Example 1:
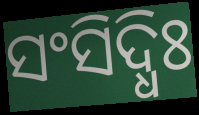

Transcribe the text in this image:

ସଂସିଦ୍ଧିଃ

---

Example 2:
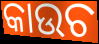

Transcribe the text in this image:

କାଉଚ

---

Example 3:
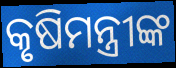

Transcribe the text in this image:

କୃଷିମନ୍ତ୍ରୀଙ୍କ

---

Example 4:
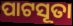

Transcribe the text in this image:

ପାଟସୂତା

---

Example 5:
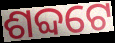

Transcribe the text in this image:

ଶବ୍ଦଟେ